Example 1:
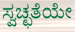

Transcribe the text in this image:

ಸ್ವಚ್ಛತೆಯೇ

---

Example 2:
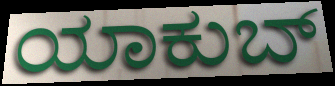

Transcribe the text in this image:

ಯಾಕುಬ್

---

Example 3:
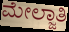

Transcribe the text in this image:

ಮೇಲ್ಜಾತಿ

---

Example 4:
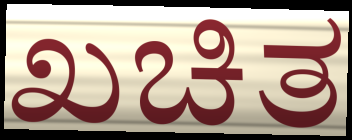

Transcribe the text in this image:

ಖಚಿತ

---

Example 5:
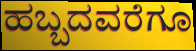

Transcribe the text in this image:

ಹಬ್ಬದವರೆಗೂ